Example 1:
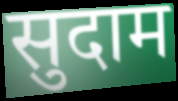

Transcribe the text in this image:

सुदाम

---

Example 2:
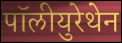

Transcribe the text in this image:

पॉलीयुरेथेन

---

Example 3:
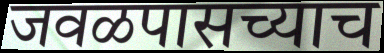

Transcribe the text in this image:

जवळपासच्याच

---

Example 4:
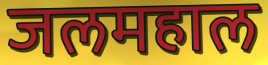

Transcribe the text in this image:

जलमहाल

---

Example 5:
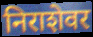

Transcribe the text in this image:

निराशेवर